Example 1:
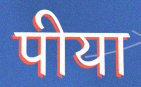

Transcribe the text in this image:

पीया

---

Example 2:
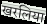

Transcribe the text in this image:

खरलिया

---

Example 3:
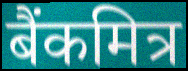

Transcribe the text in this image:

बैंकमित्र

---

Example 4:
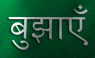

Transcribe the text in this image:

बुझाएँ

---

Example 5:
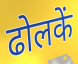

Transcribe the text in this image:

ढोलकें